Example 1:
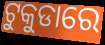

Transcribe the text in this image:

ଟୁକୁଡାରେ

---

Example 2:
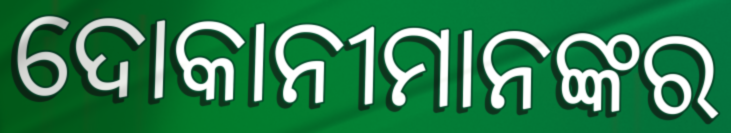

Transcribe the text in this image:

ଦୋକାନୀମାନଙ୍କର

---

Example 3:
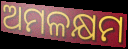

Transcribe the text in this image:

ଅମଳକ୍ଷମ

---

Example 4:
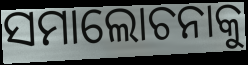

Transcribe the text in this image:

ସମାଲୋଚନାକୁ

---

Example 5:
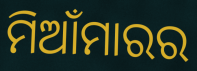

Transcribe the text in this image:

ମିଆଁମାରର